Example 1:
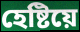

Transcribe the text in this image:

হেষ্টিয়ে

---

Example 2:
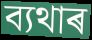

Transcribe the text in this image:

ব্যথাৰ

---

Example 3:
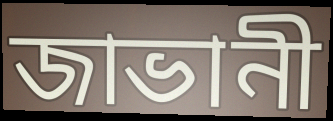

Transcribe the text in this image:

জাভানী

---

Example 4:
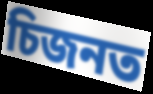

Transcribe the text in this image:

চিজনত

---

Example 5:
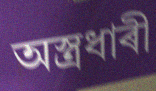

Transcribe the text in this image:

অস্ত্ৰধাৰী